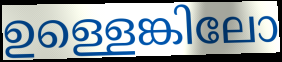
ഉള്ളെങ്കിലോ